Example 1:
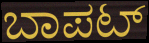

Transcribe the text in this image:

ಬಾಪಟ್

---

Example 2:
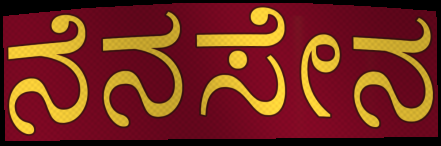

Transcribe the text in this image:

ನೆನಸೇನ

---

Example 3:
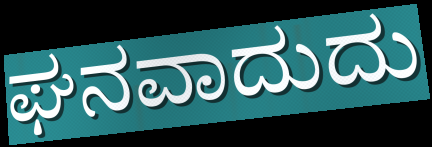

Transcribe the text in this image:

ಘನವಾದುದು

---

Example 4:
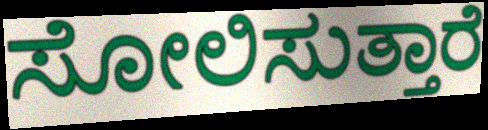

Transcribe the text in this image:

ಸೋಲಿಸುತ್ತಾರೆ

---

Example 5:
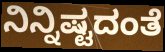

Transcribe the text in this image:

ನಿನ್ನಿಷ್ಟದಂತೆ